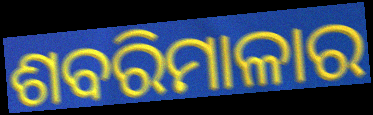
ଶବରିମାଳାର